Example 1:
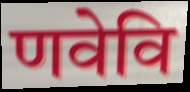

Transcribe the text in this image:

णवेवि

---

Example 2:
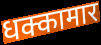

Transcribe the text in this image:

धक्कामार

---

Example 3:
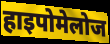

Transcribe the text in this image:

हाइपोमेलोज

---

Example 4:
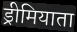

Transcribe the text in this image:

ड्रीमियाता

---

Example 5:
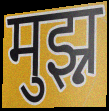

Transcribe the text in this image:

मुझ्न